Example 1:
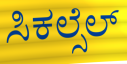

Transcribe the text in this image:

ಸಿಕಲ್ಸೆಲ್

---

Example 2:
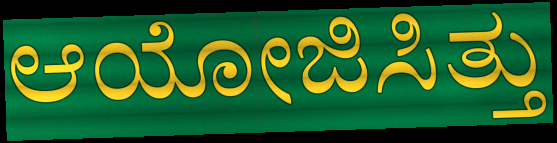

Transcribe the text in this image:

ಆಯೋಜಿಸಿತ್ತು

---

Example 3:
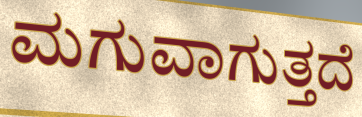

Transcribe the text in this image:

ಮಗುವಾಗುತ್ತದೆ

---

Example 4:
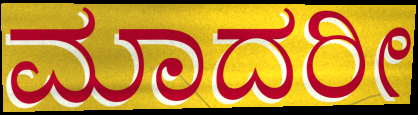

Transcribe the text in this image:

ಮಾದರೀ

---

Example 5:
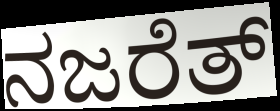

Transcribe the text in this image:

ನಜರೆತ್